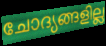
ചോദ്യങ്ങളില്ല